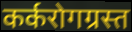
कर्करोगग्रस्त